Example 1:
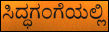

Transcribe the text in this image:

ಸಿದ್ಧಗಂಗೆಯಲ್ಲಿ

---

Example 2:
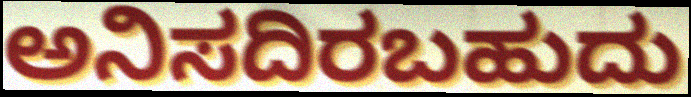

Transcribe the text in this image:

ಅನಿಸದಿರಬಹುದು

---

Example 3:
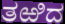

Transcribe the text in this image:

ತಱಿದ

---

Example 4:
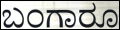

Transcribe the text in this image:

ಬಂಗಾರೂ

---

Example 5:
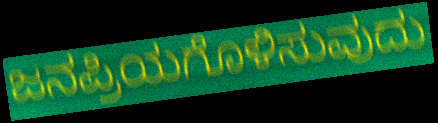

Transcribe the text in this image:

ಜನಪ್ರಿಯಗೊಳಿಸುವುದು